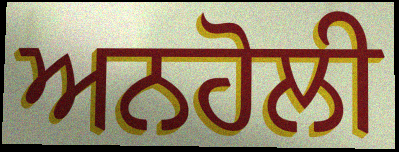
ਅਨਹੋਲੀ